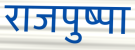
राजपुष्पा